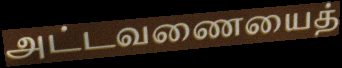
அட்டவணையைத்